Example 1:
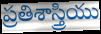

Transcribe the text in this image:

ప్రతిశాస్త్రియు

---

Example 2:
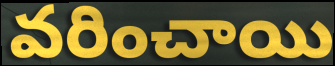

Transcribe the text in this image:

వరించాయి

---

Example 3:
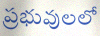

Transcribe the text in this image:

ప్రభువులలో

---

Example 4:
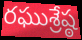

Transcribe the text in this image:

రఘుశ్రేష్ఠ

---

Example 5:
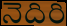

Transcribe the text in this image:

నెదిరి